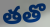
తతొ